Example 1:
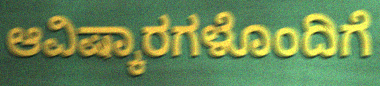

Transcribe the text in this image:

ಆವಿಷ್ಕಾರಗಳೊಂದಿಗೆ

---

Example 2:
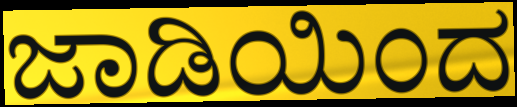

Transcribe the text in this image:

ಜಾಡಿಯಿಂದ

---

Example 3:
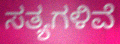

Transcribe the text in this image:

ಸತ್ಯಗಳಿವೆ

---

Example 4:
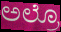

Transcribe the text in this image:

ಅಲ್ರೊ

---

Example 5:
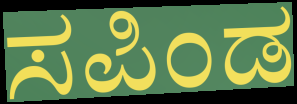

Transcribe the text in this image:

ಸಪಿಂಡ